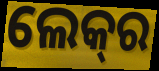
ଲେକ୍‍ର